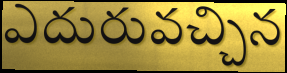
ఎదురువచ్చిన